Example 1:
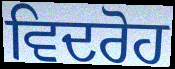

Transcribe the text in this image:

ਵਿਦਰੋਹ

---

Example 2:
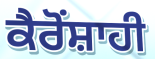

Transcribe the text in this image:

ਕੈਰੋਂਸ਼ਾਹੀ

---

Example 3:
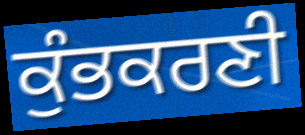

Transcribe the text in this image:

ਕੁੰਭਕਰਣੀ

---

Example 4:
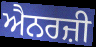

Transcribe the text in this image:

ਐਨਰਜ਼ੀ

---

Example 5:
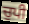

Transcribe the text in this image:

ਚੁਪੀ